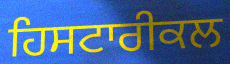
ਹਿਸਟਾਰੀਕਲ